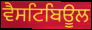
ਵੈਸਟਿਬਿਊਲ